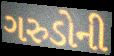
ગરુડોની